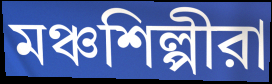
মঞ্চশিল্পীরা